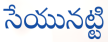
సేయునట్టి